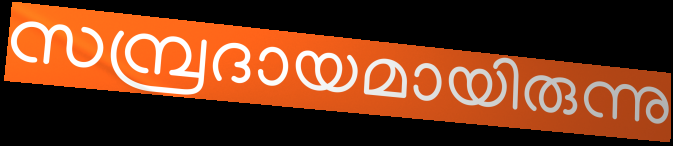
സമ്പ്രദായമായിരുന്നു